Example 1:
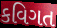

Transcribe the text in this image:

કવિગત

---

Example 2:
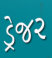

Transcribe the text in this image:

ડ્રેજર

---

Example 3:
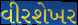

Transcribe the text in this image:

વીરશેખર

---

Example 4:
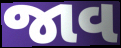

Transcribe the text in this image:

જાવ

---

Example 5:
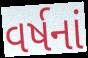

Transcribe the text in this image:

વર્ષનાં